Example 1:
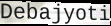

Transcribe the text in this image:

Debajyoti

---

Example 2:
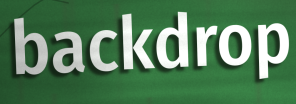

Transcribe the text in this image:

backdrop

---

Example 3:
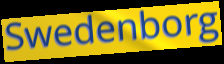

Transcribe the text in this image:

Swedenborg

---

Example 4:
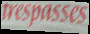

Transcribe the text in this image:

trespasses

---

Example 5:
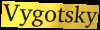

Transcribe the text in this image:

Vygotsky